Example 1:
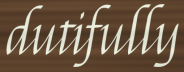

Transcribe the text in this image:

dutifully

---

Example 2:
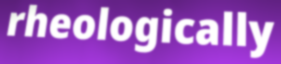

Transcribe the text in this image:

rheologically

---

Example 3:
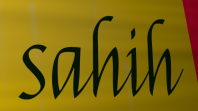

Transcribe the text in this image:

sahih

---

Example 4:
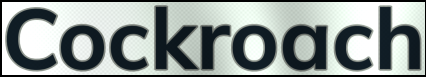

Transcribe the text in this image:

Cockroach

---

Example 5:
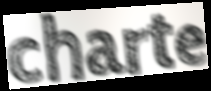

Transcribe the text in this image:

charte